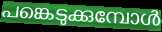
പങ്കെടുക്കുമ്പോൾ